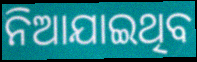
ନିଆଯାଇଥିବ